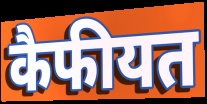
कैफीयत